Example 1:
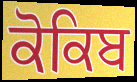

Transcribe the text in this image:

ਕੋਕਿਬ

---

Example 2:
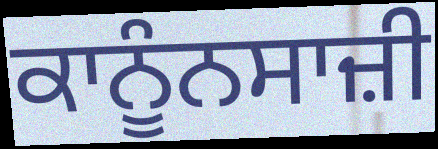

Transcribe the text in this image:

ਕਾਨੂੰਨਸਾਜ਼ੀ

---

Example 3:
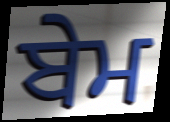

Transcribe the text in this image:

ਬੇਮ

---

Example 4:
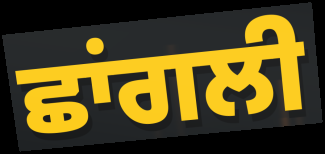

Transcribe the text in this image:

ਛਾਂਗਲੀ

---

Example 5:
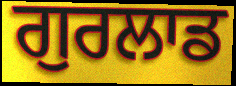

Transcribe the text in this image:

ਗੁਰਲਾਡ